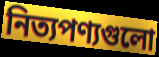
নিত্যপণ্যগুলো